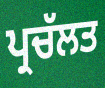
ਪ੍ਰਚੱਲਤ